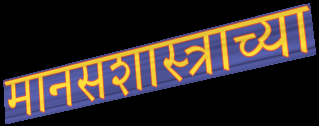
मानसशास्त्राच्या